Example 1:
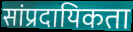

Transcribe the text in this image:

सांप्रदायिकता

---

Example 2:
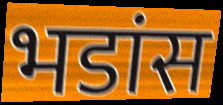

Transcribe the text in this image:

भडांस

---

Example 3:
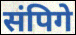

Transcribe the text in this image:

संपिगे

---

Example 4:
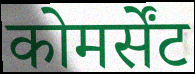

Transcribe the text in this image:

कोमर्सेंट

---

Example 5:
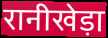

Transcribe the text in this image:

रानीखेड़ा